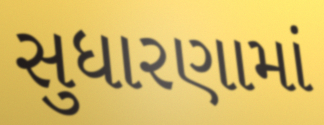
સુધારણામાં